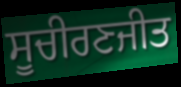
ਸੂਚੀਰਣਜੀਤ